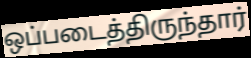
ஒப்படைத்திருந்தார்